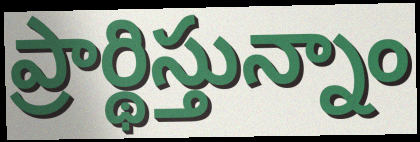
ప్రార్థిస్తున్నాం